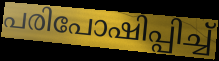
പരിപോഷിപ്പിച്ച്